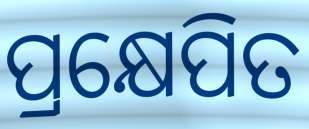
ପ୍ରକ୍ଷେପିତ